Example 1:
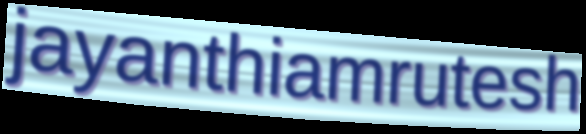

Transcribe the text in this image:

jayanthiamrutesh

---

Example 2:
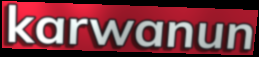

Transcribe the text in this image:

karwanun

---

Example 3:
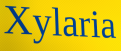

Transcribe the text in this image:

Xylaria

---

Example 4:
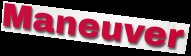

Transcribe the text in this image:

Maneuver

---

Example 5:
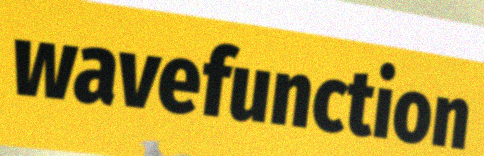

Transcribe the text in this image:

wavefunction